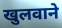
खुलवाने